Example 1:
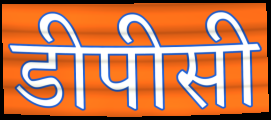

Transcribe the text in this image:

डीपीसी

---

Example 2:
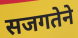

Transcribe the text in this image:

सजगतेने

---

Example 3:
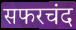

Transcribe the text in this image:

सफरचंद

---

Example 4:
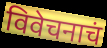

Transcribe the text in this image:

विवेचनाचं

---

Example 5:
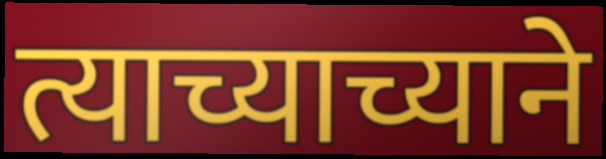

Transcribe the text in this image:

त्याच्याच्याने